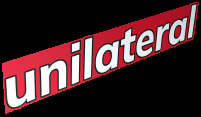
unilateral